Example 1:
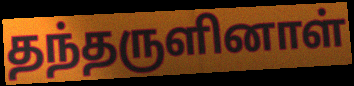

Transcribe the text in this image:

தந்தருளினாள்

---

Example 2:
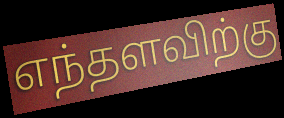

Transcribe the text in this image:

எந்தளவிற்கு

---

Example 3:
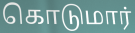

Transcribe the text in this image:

கொடுமார்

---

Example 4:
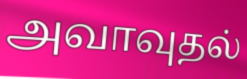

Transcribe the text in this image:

அவாவுதல்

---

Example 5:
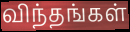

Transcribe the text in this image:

விந்தங்கள்